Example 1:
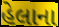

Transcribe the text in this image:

હેલાના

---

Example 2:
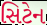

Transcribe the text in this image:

સિટેન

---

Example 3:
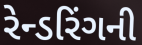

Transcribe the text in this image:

રેન્ડરિંગની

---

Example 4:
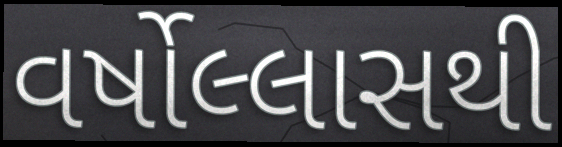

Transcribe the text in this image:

વર્ષોલ્લાસથી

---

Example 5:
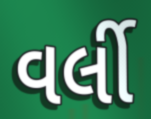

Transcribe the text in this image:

વર્લી